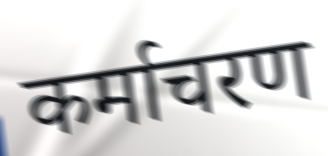
कर्माचरण